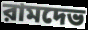
রামদেভ